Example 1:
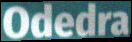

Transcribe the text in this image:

Odedra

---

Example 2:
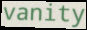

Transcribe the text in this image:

vanity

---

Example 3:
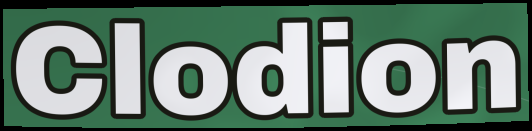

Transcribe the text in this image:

Clodion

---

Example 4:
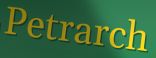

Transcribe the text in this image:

Petrarch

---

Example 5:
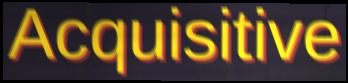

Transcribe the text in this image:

Acquisitive